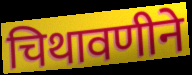
चिथावणीने